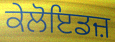
ਕੇਲੋਇਡਜ਼